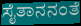
ಸೈತಾನನಂತೆ